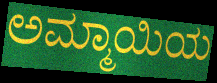
ಅಮ್ಮಾಯಿಯ